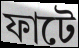
ফাটে